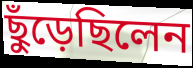
ছুঁড়েছিলেন